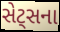
સેટ્સના